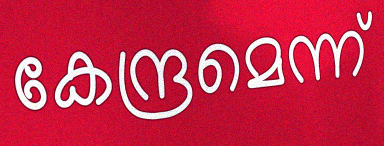
കേന്ദ്രമെന്ന്